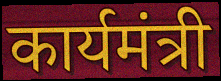
कार्यमंत्री